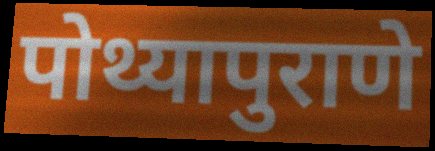
पोथ्यापुराणे